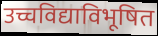
उच्चविद्याविभूषित